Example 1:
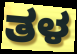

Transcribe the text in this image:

ತಳ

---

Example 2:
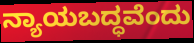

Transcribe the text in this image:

ನ್ಯಾಯಬದ್ಧವೆಂದು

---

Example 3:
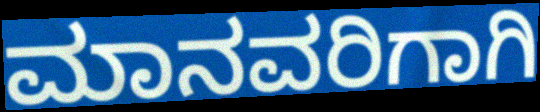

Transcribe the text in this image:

ಮಾನವರಿಗಾಗಿ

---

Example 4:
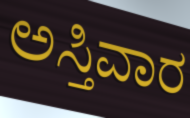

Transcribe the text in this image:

ಅಸ್ತಿವಾರ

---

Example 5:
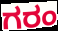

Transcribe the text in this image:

ಗರಂ